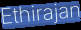
Ethirajan